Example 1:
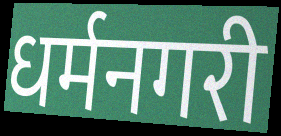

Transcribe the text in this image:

धर्मनगरी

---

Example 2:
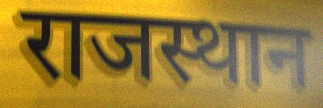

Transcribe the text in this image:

राजस्थान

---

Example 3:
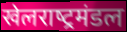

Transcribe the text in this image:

खेलराष्ट्रमंडल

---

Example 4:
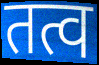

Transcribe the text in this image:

तत्व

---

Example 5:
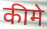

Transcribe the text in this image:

कीमे